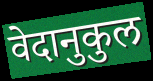
वेदानुकुल